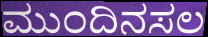
ಮುಂದಿನಸಲ